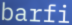
barfi